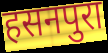
हसनपुरा